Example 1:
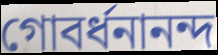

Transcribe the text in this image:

গোবর্ধনানন্দ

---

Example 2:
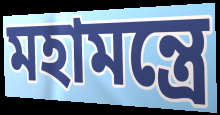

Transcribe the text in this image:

মহামন্ত্রে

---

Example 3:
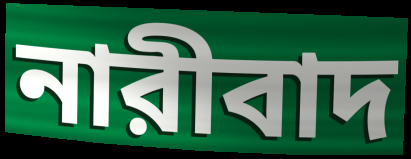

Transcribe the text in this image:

নারীবাদ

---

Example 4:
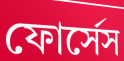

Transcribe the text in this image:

ফোর্সেস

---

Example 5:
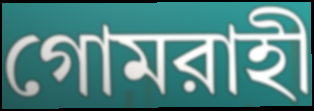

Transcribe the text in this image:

গোমরাহী